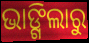
ଭାଙ୍ଗିଲାରୁ